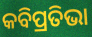
କବିପ୍ରତିଭା